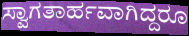
ಸ್ವಾಗತಾರ್ಹವಾಗಿದ್ದರೂ